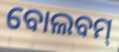
ବୋଲବମ୍